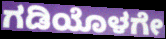
ಗಡಿಯೊಳಗೇ